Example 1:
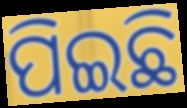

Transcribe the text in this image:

ପିଇଛି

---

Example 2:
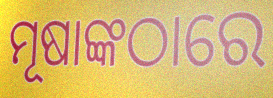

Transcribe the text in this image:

ମୂଷାଙ୍କଠାରେ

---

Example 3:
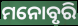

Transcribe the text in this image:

ମନୋବୃରି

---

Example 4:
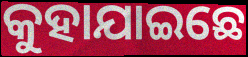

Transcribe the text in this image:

କୁହାଯାଇଛେ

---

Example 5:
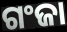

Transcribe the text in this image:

ଗଂଜା